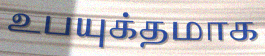
உபயுக்தமாக